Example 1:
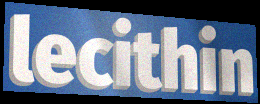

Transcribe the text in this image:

lecithin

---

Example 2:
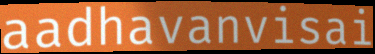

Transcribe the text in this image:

aadhavanvisai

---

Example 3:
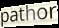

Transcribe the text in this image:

pathor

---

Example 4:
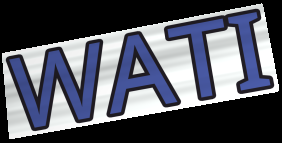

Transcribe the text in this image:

WATI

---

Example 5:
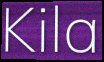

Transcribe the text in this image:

Kila